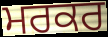
ਮਰਕਰ